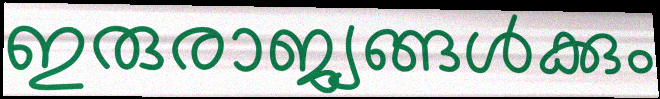
ഇരുരാജ്യങ്ങൾക്കും